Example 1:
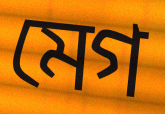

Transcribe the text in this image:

মেগ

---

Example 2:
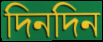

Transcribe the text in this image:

দিনদিন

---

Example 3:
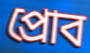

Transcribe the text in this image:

প্রোব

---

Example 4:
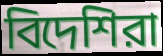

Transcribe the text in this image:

বিদেশিরা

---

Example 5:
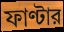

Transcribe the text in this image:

ফাণ্টার